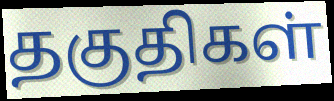
தகுதிகள்